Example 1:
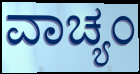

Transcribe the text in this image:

ವಾಚ್ಯಂ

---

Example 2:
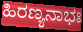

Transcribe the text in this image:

ಹಿರಣ್ಯನಾಭಃ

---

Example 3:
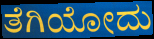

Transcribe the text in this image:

ತೆಗಿಯೋದು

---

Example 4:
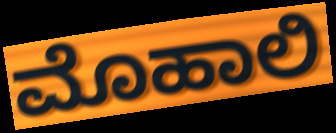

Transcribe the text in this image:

ಮೊಹಾಲಿ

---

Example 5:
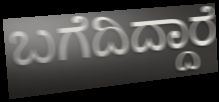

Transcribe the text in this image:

ಬಗೆದಿದ್ದಾರೆ